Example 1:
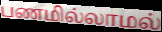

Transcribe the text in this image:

பணமில்லாமல்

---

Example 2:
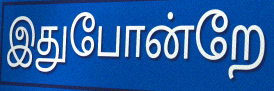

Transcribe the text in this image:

இதுபோன்றே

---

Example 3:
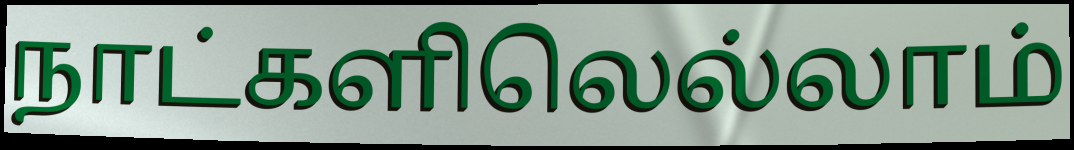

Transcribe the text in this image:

நாட்களிலெல்லாம்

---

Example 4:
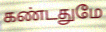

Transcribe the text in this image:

கண்டதுமே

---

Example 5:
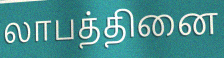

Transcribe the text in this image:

லாபத்தினை